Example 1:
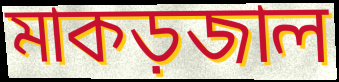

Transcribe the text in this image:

মাকড়জাল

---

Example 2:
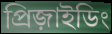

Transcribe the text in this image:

প্রিজ়াইডিং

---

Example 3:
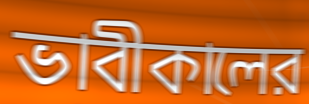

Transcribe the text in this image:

ভাবীকালের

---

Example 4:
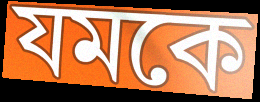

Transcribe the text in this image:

যমকে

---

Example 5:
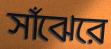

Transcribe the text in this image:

সাঁঝেরে